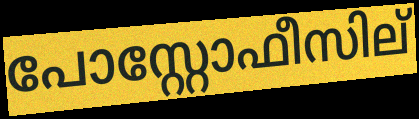
പോസ്റ്റോഫീസില്